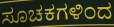
ಸೂಚಕಗಳಿಂದ